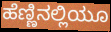
ಹೆಣ್ಣಿನಲ್ಲಿಯೂ